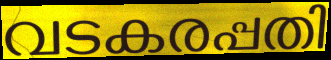
വടകരപ്പതി